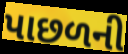
પાછળની